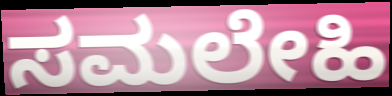
ಸಮಲೇಹಿ